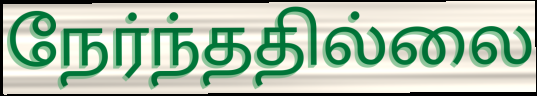
நேர்ந்ததில்லை